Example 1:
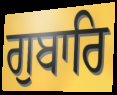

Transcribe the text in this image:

ਗੁਬਾਰਿ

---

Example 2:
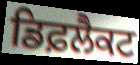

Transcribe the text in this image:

ਡਿਫ਼ਲੈਕਟ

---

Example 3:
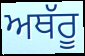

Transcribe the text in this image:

ਅਥੱਰੂ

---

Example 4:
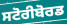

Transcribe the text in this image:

ਸਟੋਰੀਬੋਰਡ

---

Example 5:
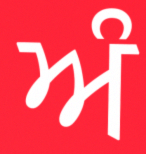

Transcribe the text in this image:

ਅੰ